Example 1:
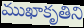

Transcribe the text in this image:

ముఖాకృతిని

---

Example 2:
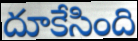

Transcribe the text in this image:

దూకేసింది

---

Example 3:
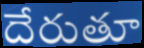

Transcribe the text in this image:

దేరుతూ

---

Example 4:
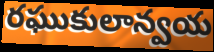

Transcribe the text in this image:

రఘుకులాన్వయ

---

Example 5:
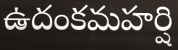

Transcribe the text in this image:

ఉదంకమహర్షి